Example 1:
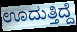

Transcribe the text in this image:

ಊದುತ್ತಿದ್ದೆ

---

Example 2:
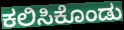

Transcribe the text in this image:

ಕಲಿಸಿಕೊಂಡು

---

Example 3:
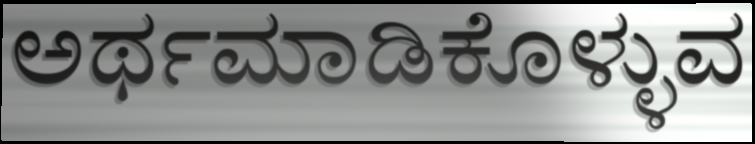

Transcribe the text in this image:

ಅರ್ಥಮಾಡಿಕೊಳ್ಳುವ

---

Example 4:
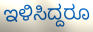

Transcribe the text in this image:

ಇಳಿಸಿದ್ದರೂ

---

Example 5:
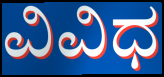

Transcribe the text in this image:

ವಿವಿಧ